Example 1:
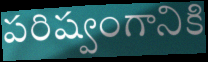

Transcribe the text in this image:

పరిష్వంగానికి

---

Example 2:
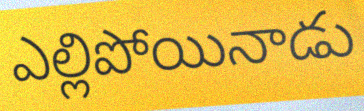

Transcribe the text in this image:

ఎల్లిపోయినాడు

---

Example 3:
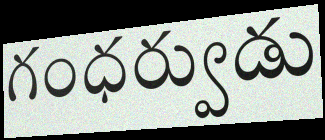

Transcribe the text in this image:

గంధర్వుడు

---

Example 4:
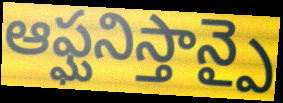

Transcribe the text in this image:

ఆఫ్ఘనిస్తాన్పై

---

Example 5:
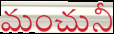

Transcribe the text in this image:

మంచునీ